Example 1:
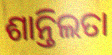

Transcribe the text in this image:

ଶାନ୍ତିଲତା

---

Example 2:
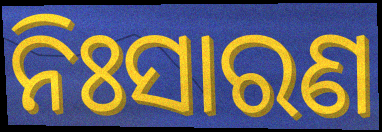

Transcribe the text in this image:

ନିଃସାରଣ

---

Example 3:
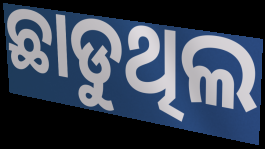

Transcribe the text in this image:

ଛାଡୁଥିଲ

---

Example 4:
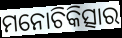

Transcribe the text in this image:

ମନୋଚିକିତ୍ସାର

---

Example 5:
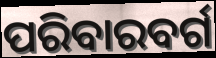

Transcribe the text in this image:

ପରିବାରବର୍ଗ